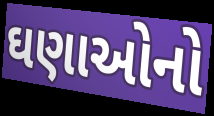
ઘણાઓનો